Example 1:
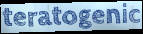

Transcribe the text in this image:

teratogenic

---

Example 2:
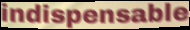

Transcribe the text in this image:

indispensable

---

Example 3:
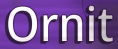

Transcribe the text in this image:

Ornit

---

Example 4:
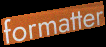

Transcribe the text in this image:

formatter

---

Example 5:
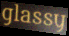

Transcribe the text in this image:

glassy